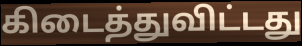
கிடைத்துவிட்டது